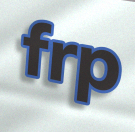
frp